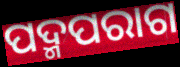
ପଦ୍ମପରାଗ